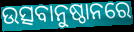
ଉତ୍ସବାନୁଷ୍ଠାନରେ